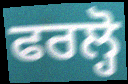
ਫਰਲ੍ਹੋ